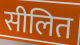
सीलित